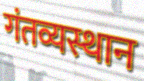
गंतव्यस्थान